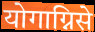
योगाग्निसे